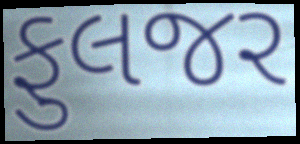
ફુલજર